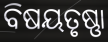
ବିଷୟତୃଷ୍ଣା